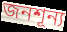
জনশূন্য